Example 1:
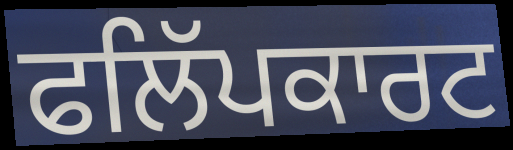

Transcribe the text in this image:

ਫਲਿੱਪਕਾਰਟ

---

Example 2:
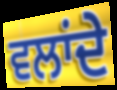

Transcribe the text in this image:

ਵਲਾਂਦੇ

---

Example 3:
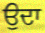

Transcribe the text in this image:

ਉਦਾ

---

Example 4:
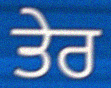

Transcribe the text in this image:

ਤੇਰ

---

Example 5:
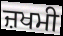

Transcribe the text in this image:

ਜ਼ਖਮੀ